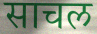
साचल